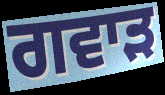
ਗਵਾੜ